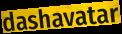
dashavatar